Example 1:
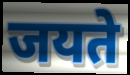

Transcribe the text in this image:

जयते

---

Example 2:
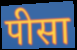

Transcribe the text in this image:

पीसा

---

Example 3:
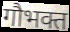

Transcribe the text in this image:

गौभक्त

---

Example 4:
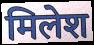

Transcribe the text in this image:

मिलेश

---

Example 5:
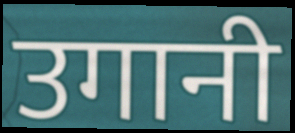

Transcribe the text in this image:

उगानी